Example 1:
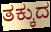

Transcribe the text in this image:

ತಕ್ಕುದ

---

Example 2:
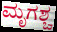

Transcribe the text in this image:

ಮೃಗಶ್ಚ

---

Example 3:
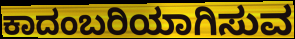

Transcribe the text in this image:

ಕಾದಂಬರಿಯಾಗಿಸುವ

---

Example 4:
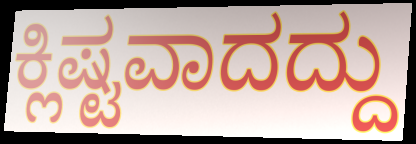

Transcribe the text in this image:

ಕ್ಲಿಷ್ಟವಾದದ್ದು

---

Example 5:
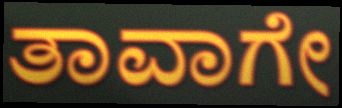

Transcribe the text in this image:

ತಾವಾಗೇ